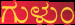
ಗುಳುಂ